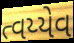
ત્વય્યેવ